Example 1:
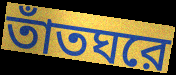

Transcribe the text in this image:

তাঁতঘরে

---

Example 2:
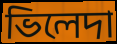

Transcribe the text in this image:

ভিলেদা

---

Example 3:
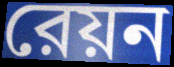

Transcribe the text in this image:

রেয়ন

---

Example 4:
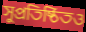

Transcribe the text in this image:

সুপ্রতিষ্ঠিতও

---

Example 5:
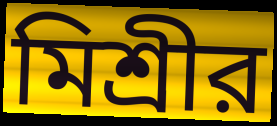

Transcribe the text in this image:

মিশ্রীর